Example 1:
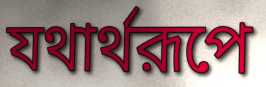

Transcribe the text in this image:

যথার্থরূপে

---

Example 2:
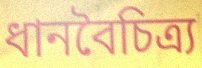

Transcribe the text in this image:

ধানবৈচিত্র্য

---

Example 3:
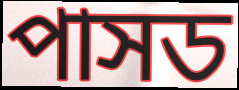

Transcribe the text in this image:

পাসড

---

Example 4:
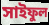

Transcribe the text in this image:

সাইফুল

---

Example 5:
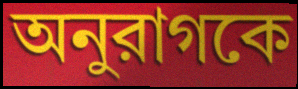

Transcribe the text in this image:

অনুরাগকে